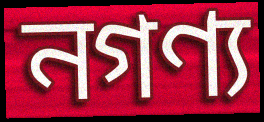
নগণ্য